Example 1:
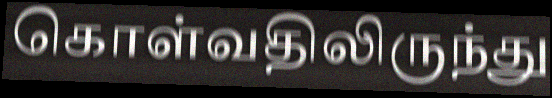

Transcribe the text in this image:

கொள்வதிலிருந்து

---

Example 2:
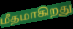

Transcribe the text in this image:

மீதமாகிறது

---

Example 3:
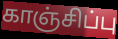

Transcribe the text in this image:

காஞ்சிப்பு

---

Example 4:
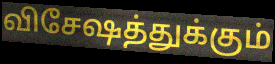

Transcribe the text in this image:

விசேஷத்துக்கும்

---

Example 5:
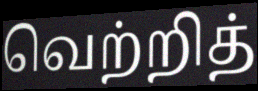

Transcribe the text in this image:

வெற்றித்